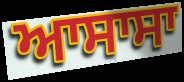
ਆਸਾਸਾ